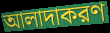
আলাদাকরণ